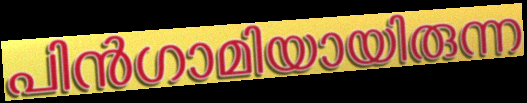
പിൻഗാമിയായിരുന്ന